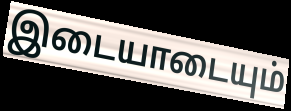
இடையாடையும்